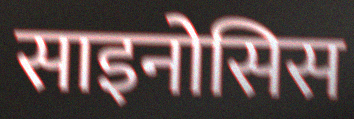
साइनोसिस